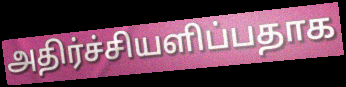
அதிர்ச்சியளிப்பதாக